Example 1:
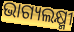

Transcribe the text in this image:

ଭାଗ୍ୟଲକ୍ଷ୍ମୀ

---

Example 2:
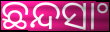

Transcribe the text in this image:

ଛନ୍ଦସାଂ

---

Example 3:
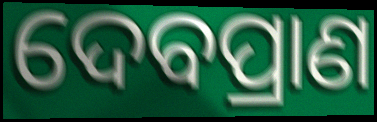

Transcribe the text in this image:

ଦେବପ୍ରାଣ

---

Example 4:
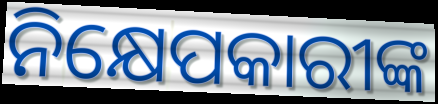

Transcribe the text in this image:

ନିକ୍ଷେପକାରୀଙ୍କ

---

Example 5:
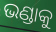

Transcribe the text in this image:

ଭଣ୍ଡାକୁ